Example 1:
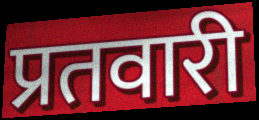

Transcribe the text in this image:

प्रतवारी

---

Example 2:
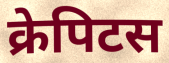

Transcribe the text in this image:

क्रेपिटस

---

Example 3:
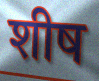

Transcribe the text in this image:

शीष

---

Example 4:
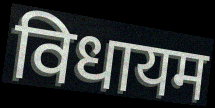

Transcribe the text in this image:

विधायम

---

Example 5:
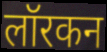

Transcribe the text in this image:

लॉरकन